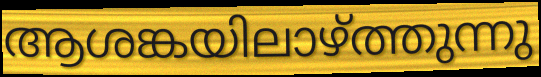
ആശങ്കയിലാഴ്ത്തുന്നു